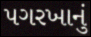
પગરખાનું